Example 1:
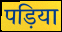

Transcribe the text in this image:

पड़िया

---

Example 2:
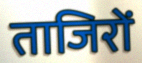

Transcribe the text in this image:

ताजिरों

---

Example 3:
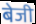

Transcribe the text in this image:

बेजी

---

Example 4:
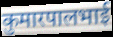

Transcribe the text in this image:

कुमारपालभाई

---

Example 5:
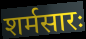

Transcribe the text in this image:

शर्मसारः